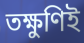
তক্ষুণিই